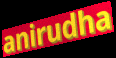
anirudha